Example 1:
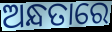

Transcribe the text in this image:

ଅନ୍ଧତାରେ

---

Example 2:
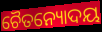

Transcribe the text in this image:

ଚୈତନ୍ୟୋଦୟ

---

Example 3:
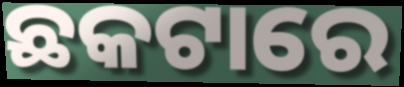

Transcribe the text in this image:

ଛକଟାରେ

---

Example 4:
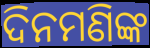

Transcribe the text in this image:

ଦିନମଣିଙ୍କ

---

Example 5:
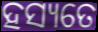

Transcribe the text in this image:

ହସ୍ୟତେ